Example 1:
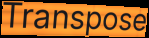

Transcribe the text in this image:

Transpose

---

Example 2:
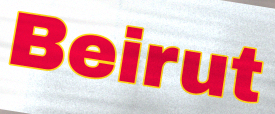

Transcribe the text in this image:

Beirut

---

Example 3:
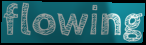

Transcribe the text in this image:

flowing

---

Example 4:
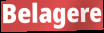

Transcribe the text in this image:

Belagere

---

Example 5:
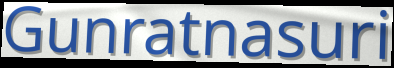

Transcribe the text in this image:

Gunratnasuri